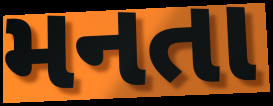
મનતા